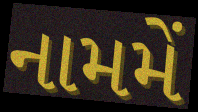
નામમેં